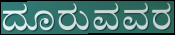
ದೂರುವವರ